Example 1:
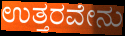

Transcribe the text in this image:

ಉತ್ತರವೇನು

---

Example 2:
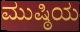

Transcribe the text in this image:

ಮುಷ್ಠಿಯ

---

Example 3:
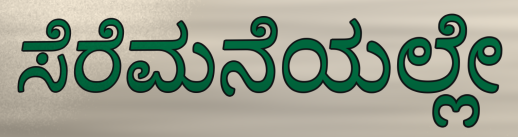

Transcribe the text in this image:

ಸೆರೆಮನೆಯಲ್ಲೇ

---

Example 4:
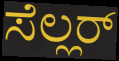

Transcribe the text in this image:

ಸೆಲ್ಲರ್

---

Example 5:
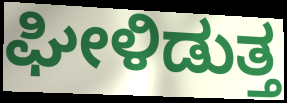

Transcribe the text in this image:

ಘೀಳಿಡುತ್ತ